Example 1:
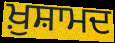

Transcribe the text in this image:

ਖ਼ੁਸ਼ਾਮਦ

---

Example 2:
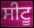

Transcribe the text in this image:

ਸੀਟੂ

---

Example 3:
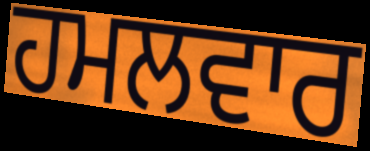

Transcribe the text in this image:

ਹਮਲਵਾਰ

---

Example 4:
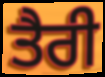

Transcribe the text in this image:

ਤੈਰੀ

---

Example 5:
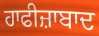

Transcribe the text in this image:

ਹਾਫੀਜ਼ਾਬਾਦ